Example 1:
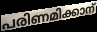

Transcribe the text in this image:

പരിണമിക്കാന്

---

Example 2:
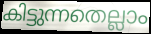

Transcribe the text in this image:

കിട്ടുന്നതെല്ലാം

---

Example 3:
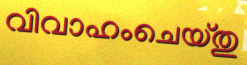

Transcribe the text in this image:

വിവാഹംചെയ്തു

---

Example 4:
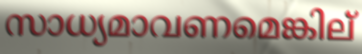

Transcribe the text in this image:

സാധ്യമാവണമെങ്കില്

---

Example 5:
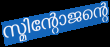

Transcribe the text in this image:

സ്മിന്റോജന്റെ